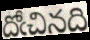
దోఁచినది